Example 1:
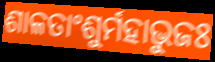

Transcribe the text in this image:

ଶାଳତାଂଶୁର୍ମହାଭୁଜଃ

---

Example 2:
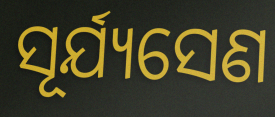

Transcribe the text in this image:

ସୂର୍ଯ୍ୟସେଣ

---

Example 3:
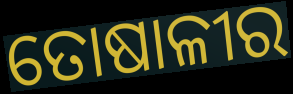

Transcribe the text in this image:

ତୋଷାଳୀର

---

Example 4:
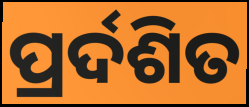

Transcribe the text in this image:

ପ୍ରର୍ଦଶିତ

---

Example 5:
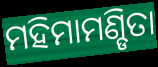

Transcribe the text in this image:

ମହିମାମଣ୍ଡିତା